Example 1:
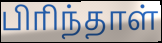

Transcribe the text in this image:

பிரிந்தாள்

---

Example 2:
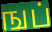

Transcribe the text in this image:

ஙப்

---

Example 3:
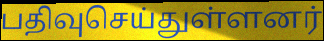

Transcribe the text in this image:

பதிவுசெய்துள்ளனர்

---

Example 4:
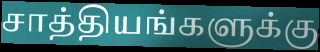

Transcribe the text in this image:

சாத்தியங்களுக்கு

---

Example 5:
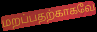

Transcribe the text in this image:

மறப்பதற்காகவே